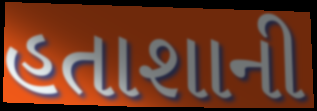
હતાશાની